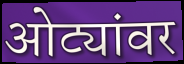
ओट्यांवर